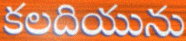
కలదియును